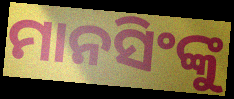
ମାନସିଂଙ୍କୁ